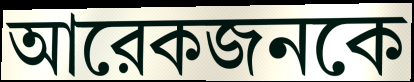
আরেকজনকে